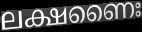
ലക്ഷണൈഃ